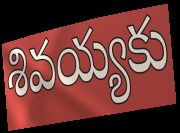
శివయ్యకు